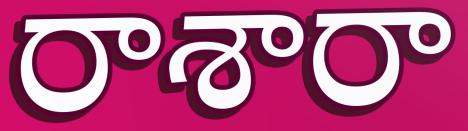
రాశారా